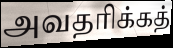
அவதரிக்கத்